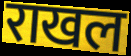
राखल